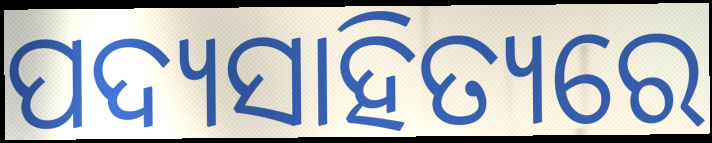
ପଦ୍ୟସାହିତ୍ୟରେ